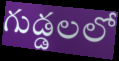
గుడ్డలలో